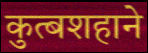
कुत्बशहाने